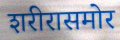
शरीरासमोर